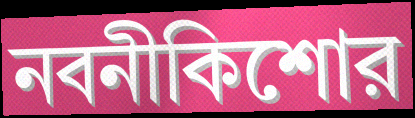
নবনীকিশোর